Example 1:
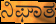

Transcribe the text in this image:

ನಿಘಾತ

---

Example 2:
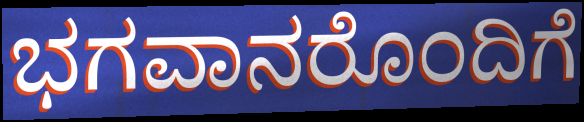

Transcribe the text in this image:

ಭಗವಾನರೊಂದಿಗೆ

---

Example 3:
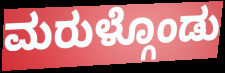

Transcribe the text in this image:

ಮರುಳ್ಗೊಂಡು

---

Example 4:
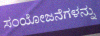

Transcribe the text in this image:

ಸಂಯೋಜನೆಗಳನ್ನು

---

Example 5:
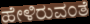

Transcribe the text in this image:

ಹೇಳಿರುವಂತೆ